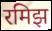
रमिझ